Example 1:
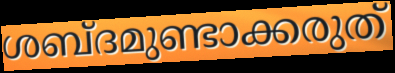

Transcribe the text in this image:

ശബ്ദമുണ്ടാക്കരുത്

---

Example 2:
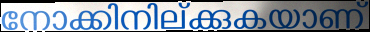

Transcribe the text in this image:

നോക്കിനില്ക്കുകയാണ്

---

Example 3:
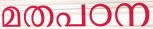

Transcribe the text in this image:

മതപഠന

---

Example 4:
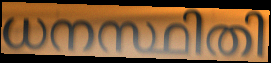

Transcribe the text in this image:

ധനസ്ഥിതി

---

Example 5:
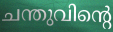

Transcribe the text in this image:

ചന്തുവിന്റെ